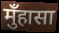
मुँहासा